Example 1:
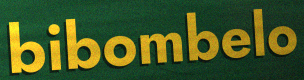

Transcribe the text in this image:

bibombelo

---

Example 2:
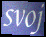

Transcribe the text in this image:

svoj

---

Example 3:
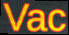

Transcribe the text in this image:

Vac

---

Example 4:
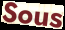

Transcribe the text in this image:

Sous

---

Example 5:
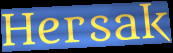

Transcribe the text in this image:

Hersak